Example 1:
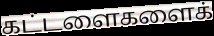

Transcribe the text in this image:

கட்டளைகளைக்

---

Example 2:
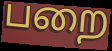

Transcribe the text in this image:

பறை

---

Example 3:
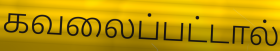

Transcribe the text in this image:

கவலைப்பட்டால்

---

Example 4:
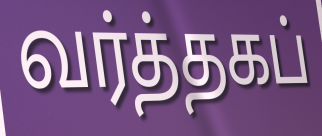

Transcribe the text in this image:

வர்த்தகப்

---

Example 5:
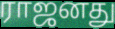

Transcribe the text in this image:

ராஜனது